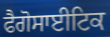
ਫੈਗੋਸਾਈਟਿਕ